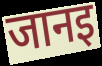
जानइ